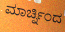
ಮಾರ್ಚ್ನಿಂದ